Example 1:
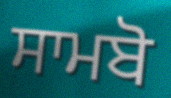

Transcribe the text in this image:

ਸਾਮਬੋ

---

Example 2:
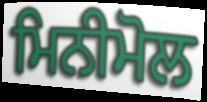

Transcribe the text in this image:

ਮਿਨੀਮੋਲ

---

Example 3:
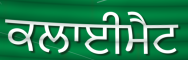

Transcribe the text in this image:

ਕਲਾਈਮੈਟ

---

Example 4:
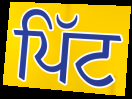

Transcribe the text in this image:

ਪਿੱਟ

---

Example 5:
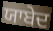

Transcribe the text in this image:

ਯਾਬੇਦ